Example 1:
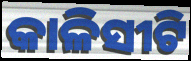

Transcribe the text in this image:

କାଳିସୀଟି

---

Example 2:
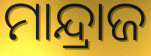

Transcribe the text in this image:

ମାନ୍ଦ୍ରାଜ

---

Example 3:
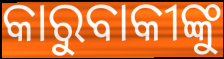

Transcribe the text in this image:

କାରୁବାକୀଙ୍କୁ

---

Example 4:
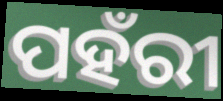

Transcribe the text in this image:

ପହଁରୀ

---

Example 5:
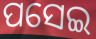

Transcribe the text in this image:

ପସେଇ